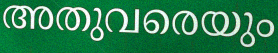
അതുവരെയും